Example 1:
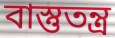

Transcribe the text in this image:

বাস্তুতন্ত্র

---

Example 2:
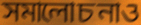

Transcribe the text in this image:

সমালোচনাও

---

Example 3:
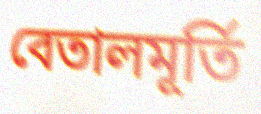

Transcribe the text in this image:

বেতালমূর্তি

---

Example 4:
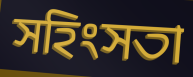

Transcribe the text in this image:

সহিংসতা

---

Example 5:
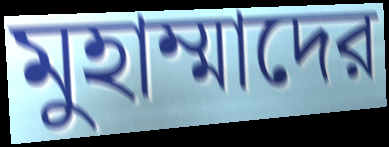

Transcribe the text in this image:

মুহাম্মাদের